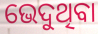
ଭେଦୁଥିବା